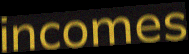
incomes